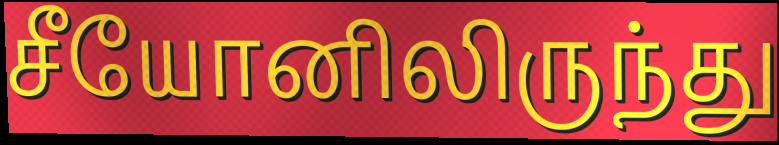
சீயோனிலிருந்து